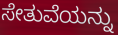
ಸೇತುವೆಯನ್ನು